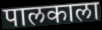
पालकाला